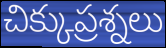
చిక్కుప్రశ్నలు